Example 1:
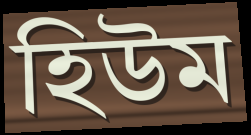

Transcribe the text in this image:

হিউম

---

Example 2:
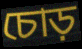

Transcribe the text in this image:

চোড়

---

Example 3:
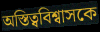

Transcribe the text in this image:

অস্তিত্ববিশ্বাসকে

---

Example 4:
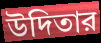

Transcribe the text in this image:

উদিতার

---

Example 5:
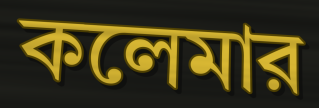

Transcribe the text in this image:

কলেমার